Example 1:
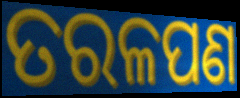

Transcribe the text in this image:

ତରଳପଣ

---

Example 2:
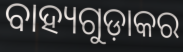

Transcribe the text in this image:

ବାହ୍ୟଗୁଡ଼ାକର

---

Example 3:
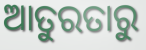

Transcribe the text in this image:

ଆତୁରତାରୁ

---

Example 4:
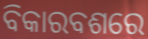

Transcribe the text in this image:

ବିକାରବଶରେ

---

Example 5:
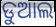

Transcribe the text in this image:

ଡୁଆଲ